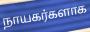
நாயகர்களாக